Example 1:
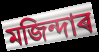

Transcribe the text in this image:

মজিন্দাৰ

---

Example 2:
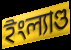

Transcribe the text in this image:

ইংল্যাণ্ড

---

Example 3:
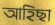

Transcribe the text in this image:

আহিছা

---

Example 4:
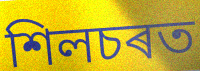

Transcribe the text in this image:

শিলচৰত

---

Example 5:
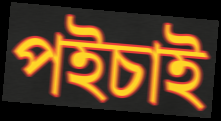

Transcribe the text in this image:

পইচাই